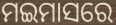
ମଇମାସରେ